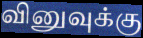
வினுவுக்கு